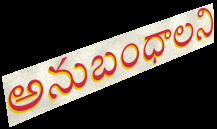
అనుబంధాలని